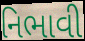
નિભાવી